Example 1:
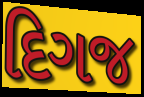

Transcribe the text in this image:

દિગજ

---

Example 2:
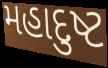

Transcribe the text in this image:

મહાદુષ્ટ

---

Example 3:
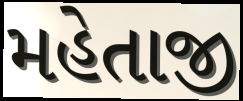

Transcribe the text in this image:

મહેતાજી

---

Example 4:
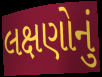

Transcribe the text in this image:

લક્ષણોનું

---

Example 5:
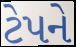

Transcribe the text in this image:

ટેપને